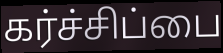
கர்ச்சிப்பை